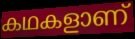
കഥകളാണ്